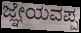
ಜ್ಞೇಯವಪ್ಪ